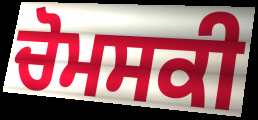
ਚੋਮਸਕੀ